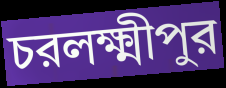
চরলক্ষ্মীপুর